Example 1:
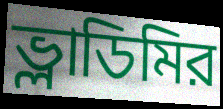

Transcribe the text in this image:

ভ্লাডিমির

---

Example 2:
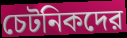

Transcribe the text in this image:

চেটনিকদের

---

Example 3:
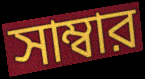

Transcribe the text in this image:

সাম্বার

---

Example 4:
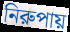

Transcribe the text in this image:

নিরুপায়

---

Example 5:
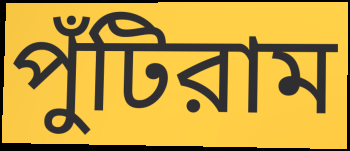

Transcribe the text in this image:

পুঁটিরাম